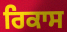
ਰਿਕਾਸ